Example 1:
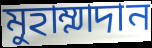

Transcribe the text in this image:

মুহাম্মাদান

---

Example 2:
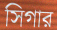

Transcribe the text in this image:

সিগার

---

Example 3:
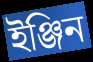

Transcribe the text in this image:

ইঞ্জিন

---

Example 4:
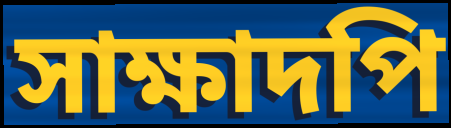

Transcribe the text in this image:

সাক্ষাদপি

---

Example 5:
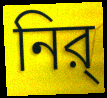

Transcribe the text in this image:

নির্